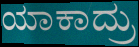
ಯಾಕಾದ್ರು